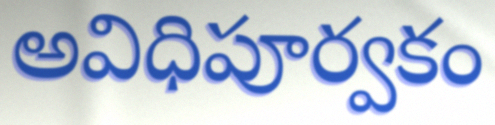
అవిధిపూర్వకం